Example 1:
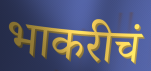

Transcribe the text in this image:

भाकरीचं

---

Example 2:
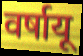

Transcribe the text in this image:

वर्षायू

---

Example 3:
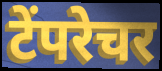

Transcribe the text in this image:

टेंपरेचर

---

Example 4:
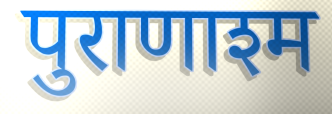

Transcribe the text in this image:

पुराणाश्म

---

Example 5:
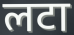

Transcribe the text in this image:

लटा